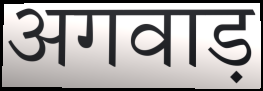
अगवाड़